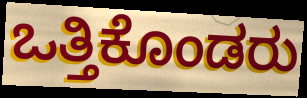
ಒತ್ತಿಕೊಂಡರು